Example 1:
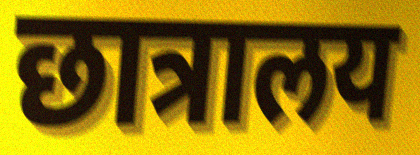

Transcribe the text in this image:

छात्रालय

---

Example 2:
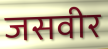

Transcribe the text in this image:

जसवीर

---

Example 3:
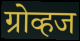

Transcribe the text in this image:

ग्रोव्हज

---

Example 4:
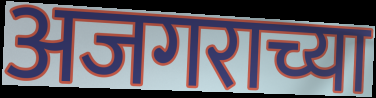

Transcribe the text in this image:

अजगराच्या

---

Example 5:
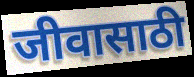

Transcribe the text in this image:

जीवासाठी